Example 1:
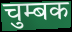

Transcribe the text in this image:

चुम्बक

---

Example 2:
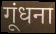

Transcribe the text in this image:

गूंधना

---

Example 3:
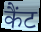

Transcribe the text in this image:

कैंट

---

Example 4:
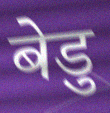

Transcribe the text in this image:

बेडु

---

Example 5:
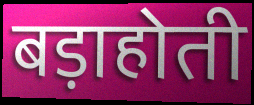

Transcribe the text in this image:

बड़ाहोती